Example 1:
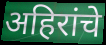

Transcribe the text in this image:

अहिरांचे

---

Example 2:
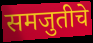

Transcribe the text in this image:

समजुतीचे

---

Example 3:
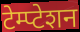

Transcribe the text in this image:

टेम्प्टेशन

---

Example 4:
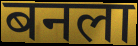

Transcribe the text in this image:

बनला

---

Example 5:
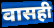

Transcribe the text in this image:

वासही